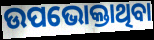
ଉପଭୋକ୍ତାଥିବା